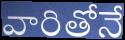
వారితోనే